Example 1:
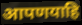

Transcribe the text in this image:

आपणयाहि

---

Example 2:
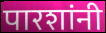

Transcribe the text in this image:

पारशांनी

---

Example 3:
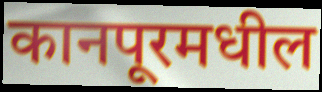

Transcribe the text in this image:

कानपूरमधील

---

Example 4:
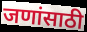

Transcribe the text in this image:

जणांसाठी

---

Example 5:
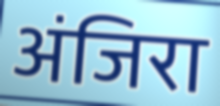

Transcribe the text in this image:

अंजिरा